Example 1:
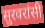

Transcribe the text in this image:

सुरवरांसी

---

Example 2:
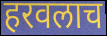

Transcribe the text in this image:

हरवलाच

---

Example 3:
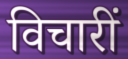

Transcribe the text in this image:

विचारीं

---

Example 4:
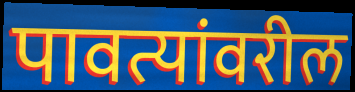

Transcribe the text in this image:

पावत्यांवरील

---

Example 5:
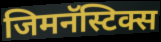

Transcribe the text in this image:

जिमनॅस्टिक्स